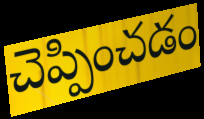
చెప్పించడం